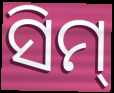
ସିମ୍